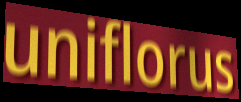
uniflorus